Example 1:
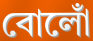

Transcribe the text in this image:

বোলোঁ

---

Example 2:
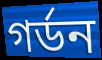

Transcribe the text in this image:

গৰ্ডন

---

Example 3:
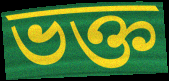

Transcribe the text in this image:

ভক্ত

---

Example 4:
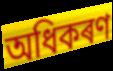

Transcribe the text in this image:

অধিকৰণ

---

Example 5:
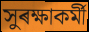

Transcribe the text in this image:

সুৰক্ষাকৰ্মী